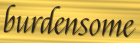
burdensome